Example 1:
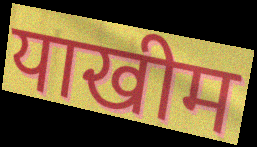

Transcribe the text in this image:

याखीम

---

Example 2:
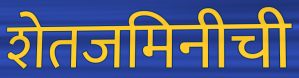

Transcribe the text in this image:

शेतजमिनीची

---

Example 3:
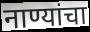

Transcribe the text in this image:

नाण्यांचा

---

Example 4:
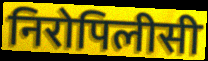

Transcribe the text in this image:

निरोपिलीसी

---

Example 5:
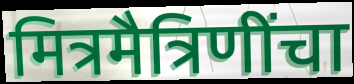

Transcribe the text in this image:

मित्रमैत्रिणींचा